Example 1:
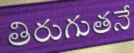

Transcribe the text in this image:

తిరుగుతనే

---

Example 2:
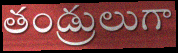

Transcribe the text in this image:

తండ్రులుగా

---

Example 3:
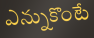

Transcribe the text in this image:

ఎన్నుకొంటే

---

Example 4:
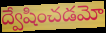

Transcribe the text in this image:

ద్వేషించడమో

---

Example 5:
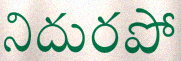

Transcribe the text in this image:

నిదురపో